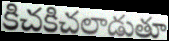
కిచకిచలాడుతూ